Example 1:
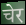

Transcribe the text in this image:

चेर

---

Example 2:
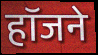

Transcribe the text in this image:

हॉजने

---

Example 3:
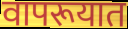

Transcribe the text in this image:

वापरूयात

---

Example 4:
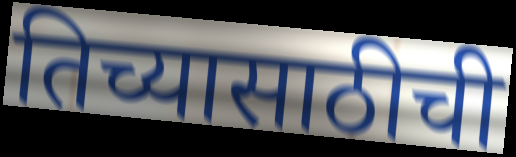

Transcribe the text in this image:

तिच्यासाठीची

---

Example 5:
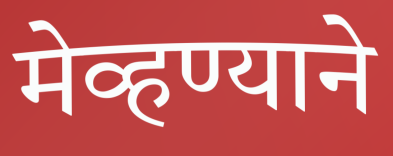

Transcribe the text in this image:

मेव्हण्याने